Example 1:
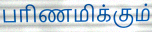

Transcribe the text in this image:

பரிணமிக்கும்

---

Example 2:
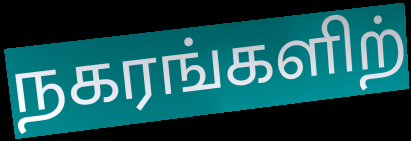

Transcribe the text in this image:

நகரங்களிற்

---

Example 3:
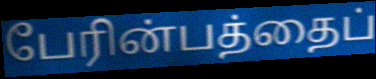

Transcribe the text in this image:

பேரின்பத்தைப்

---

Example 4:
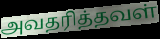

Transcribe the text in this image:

அவதரித்தவள்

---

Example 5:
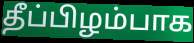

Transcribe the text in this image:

தீப்பிழம்பாக